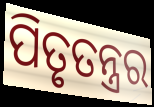
ପିତୃତନ୍ତ୍ରର